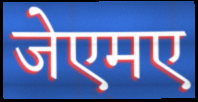
जेएमए